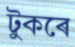
টুকৰে